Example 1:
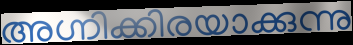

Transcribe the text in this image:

അഗ്നിക്കിരയാക്കുന്നു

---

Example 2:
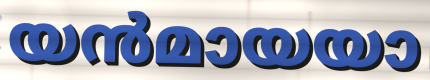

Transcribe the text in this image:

യൻമായയാ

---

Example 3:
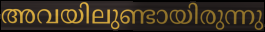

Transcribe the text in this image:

അവയിലുണ്ടായിരുന്നു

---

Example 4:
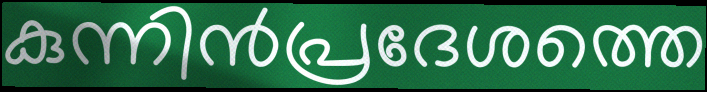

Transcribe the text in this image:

കുന്നിൻപ്രദേശത്തെ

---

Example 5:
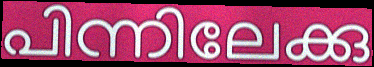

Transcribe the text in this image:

പിന്നിലേക്കു